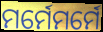
ମର୍ମେମର୍ମେ